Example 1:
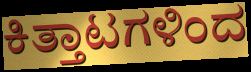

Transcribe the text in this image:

ಕಿತ್ತಾಟಗಳಿಂದ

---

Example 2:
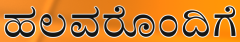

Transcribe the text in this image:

ಹಲವರೊಂದಿಗೆ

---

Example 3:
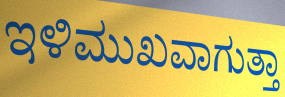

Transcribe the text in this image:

ಇಳಿಮುಖವಾಗುತ್ತಾ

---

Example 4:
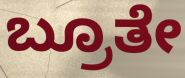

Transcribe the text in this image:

ಬ್ರೂತೇ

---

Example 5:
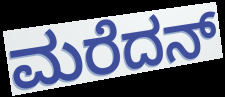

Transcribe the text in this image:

ಮರೆದನ್